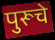
पुरूचे